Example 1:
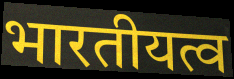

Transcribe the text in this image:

भारतीयत्व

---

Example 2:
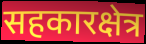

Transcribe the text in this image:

सहकारक्षेत्र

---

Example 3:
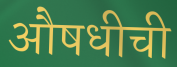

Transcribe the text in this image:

औषधीची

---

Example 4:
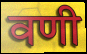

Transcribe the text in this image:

वणी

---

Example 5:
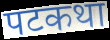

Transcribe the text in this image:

पटकथा